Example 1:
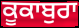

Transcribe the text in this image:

ਕੂਕਾਬੁਰਾ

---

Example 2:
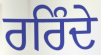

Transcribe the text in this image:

ਰਰਿੰਦੇ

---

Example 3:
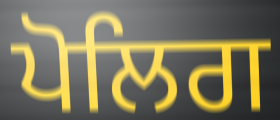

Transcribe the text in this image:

ਪੋਲਿਗ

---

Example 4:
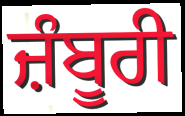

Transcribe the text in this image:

ਜ਼ੰਬੂਰੀ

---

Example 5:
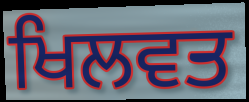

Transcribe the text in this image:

ਖਿਲਵਤ